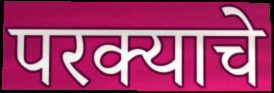
परक्याचे